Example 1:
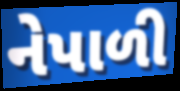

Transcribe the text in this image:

નેપાળી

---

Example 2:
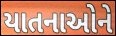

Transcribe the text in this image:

યાતનાઓને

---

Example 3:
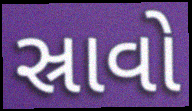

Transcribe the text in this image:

સ્રાવો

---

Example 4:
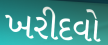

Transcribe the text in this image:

ખરીદવો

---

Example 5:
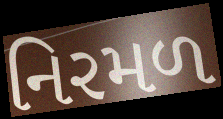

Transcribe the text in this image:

નિરમળ